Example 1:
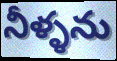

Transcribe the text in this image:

నీళ్ళను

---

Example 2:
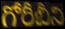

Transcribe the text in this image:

గోరీబీని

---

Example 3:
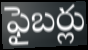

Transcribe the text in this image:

ఫైబర్లు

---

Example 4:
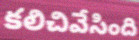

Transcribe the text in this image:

కలిచివేసింది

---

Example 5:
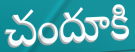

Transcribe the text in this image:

చందూకి